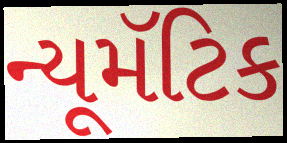
ન્યૂમૅટિક